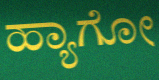
ಹ್ಯಾಗೋ